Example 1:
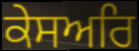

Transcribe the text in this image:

ਕੇਸਅਰਿ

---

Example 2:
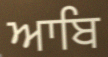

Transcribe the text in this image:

ਆਬਿ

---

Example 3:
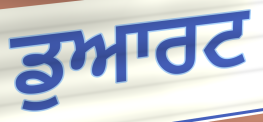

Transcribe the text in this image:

ਡੁਆਰਟ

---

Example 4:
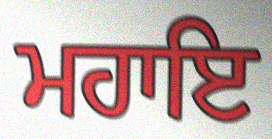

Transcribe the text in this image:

ਮਹਾਇ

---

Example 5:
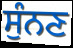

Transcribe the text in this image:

ਸੁੰਨਣ